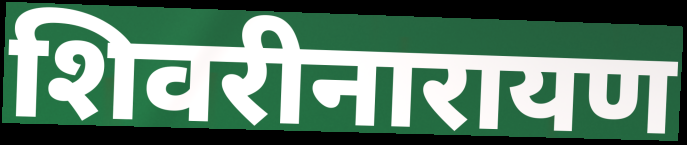
शिवरीनारायण